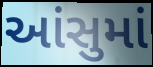
આંસુમાં